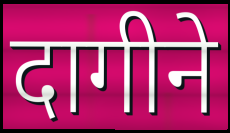
दागीने